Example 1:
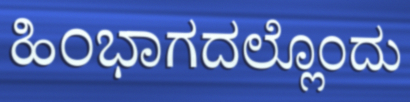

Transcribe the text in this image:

ಹಿಂಭಾಗದಲ್ಲೊಂದು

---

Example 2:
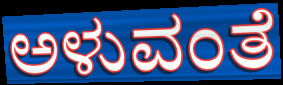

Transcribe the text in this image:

ಅಳುವಂತೆ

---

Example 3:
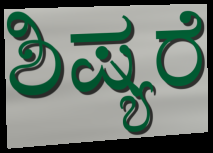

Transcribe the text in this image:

ಶಿಷ್ಯರೆ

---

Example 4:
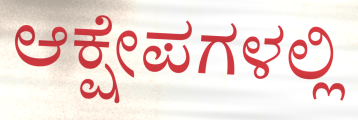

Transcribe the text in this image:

ಆಕ್ಷೇಪಗಳಲ್ಲಿ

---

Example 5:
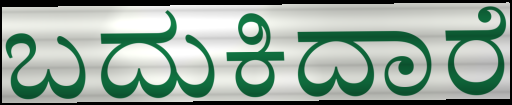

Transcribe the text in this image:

ಬದುಕಿದಾರೆ